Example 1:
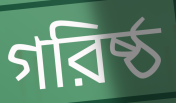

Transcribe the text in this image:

গরিষ্ঠ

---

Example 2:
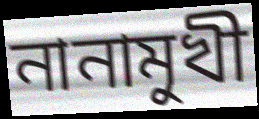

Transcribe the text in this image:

নানামুখী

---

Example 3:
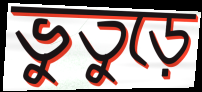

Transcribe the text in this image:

ভুতুড়ে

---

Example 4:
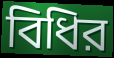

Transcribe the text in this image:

বিধির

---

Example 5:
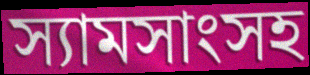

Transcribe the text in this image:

স্যামসাংসহ